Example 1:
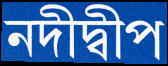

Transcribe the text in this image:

নদীদ্বীপ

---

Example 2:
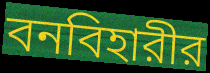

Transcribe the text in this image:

বনবিহারীর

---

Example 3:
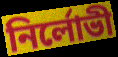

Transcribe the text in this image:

নির্লোভী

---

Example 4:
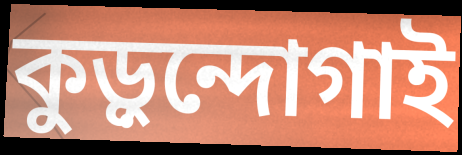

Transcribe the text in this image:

কুড়ুন্দোগাই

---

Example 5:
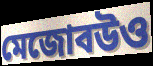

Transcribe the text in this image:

মেজোবউও